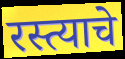
रस्त्याचे